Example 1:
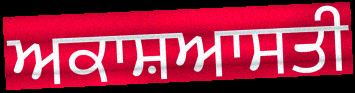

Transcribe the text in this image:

ਅਕਾਸ਼ਆਸਤੀ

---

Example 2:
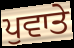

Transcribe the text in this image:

ਪੁਵਾਤੇ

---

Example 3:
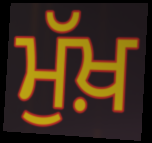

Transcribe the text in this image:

ਮੁੱਖ਼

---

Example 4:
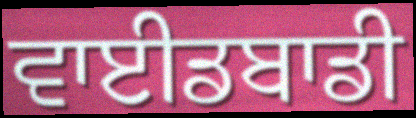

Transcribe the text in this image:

ਵਾਈਡਬਾਡੀ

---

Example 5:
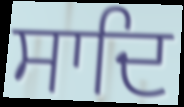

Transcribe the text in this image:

ਸਾਦਿ